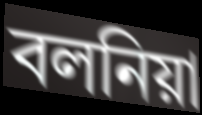
বলনিয়া